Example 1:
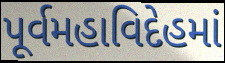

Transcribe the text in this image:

પૂર્વમહાવિદેહમાં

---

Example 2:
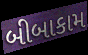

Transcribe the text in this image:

બીબાકામ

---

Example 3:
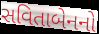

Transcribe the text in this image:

સવિતાબેનનો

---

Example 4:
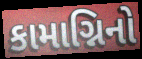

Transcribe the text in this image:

કામાગ્નિનો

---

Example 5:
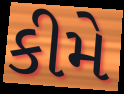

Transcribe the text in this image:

કીમે